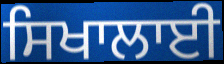
ਸਿਖਾਲਾਈ